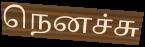
நெனச்சு